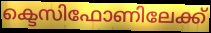
ക്ടെസിഫോണിലേക്ക്